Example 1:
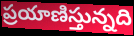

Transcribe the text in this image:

ప్రయాణిస్తున్నది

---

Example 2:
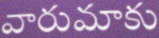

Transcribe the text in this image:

వారుమాకు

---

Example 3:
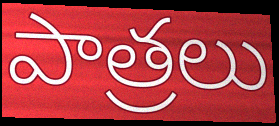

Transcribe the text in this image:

పాత్రలు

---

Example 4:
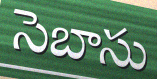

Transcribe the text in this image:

సెబాసు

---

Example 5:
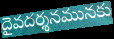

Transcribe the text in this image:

దైవదర్శనమునకు